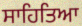
ਸਾਹਿਤਿਆ